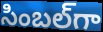
సింబల్‌గా